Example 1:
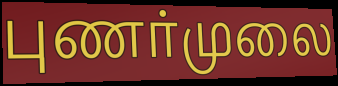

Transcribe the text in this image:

புணர்முலை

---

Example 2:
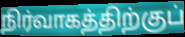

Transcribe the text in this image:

நிர்வாகத்திற்குப்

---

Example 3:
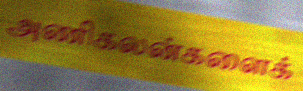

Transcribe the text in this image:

அணிகலன்களைக்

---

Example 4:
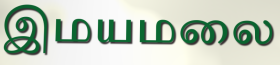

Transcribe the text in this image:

இமயமலை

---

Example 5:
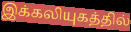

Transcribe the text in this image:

இக்கலியுகத்தில்